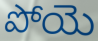
పోయె